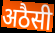
अठैसी